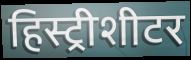
हिस्ट्रीशीटर